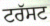
ਟਰੱਸਟ